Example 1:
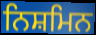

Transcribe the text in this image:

ਨਿਸ਼ਮਿਨ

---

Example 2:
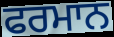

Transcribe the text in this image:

ਫਰਮਾਨ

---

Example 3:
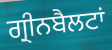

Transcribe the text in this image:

ਗ੍ਰੀਨਬੈਲਟਾਂ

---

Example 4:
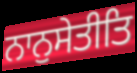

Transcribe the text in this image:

ਨਾਨੁਸੇਤੀਤਿ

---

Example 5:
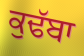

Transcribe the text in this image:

ਕੁਢੱਬਾ